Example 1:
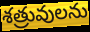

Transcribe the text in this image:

శత్రువులను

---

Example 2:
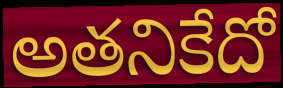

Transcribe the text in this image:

అతనికేదో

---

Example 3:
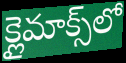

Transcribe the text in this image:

క్లైమాక్స్‌లో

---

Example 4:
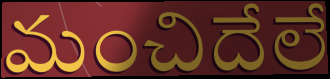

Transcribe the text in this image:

మంచిదేలే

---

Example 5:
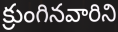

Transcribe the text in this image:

క్రుంగినవారిని